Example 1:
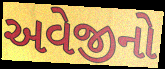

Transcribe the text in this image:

અવેજીનો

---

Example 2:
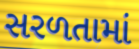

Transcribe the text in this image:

સરળતામાં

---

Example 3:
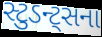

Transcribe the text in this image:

સ્ટુડન્ટ્સના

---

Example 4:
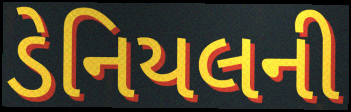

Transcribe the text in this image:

ડેનિયલની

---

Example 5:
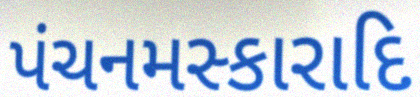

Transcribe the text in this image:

પંચનમસ્કારાદિ